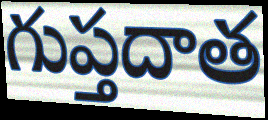
గుప్తదాత